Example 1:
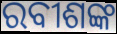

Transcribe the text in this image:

ରବୀଶଙ୍କ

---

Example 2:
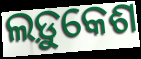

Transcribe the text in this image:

ଲଡ଼ୁକେଶ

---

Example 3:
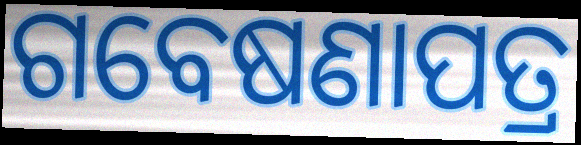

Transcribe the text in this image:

ଗବେଷଣାପତ୍ର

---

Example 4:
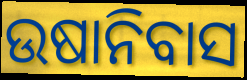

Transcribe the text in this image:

ଉଷାନିବାସ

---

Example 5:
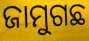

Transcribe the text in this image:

ଜାମୁଗଛ